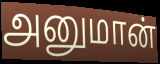
அனுமான்